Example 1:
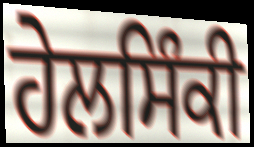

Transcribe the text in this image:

ਹੇਲਸਿੰਕੀ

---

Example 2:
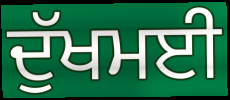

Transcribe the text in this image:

ਦੁੱਖਮਈ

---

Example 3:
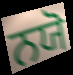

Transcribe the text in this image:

ਨਯੋ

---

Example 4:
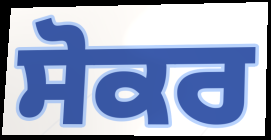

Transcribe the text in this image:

ਸੋਕਰ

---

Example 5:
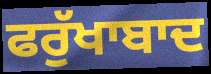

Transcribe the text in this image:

ਫਰੁੱਖਾਬਾਦ